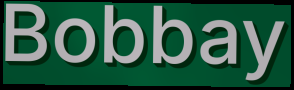
Bobbay